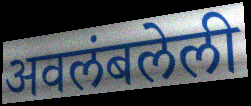
अवलंबलेली